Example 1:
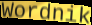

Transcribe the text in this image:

Wordnik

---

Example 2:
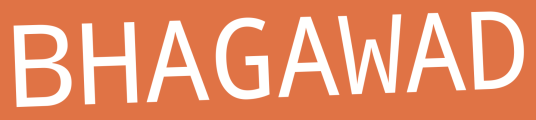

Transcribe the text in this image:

BHAGAWAD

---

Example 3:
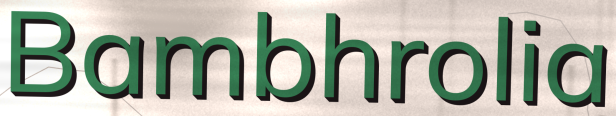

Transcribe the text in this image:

Bambhrolia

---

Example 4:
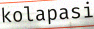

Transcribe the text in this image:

kolapasi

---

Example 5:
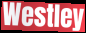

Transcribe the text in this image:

Westley